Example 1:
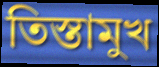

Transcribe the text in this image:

তিস্তামুখ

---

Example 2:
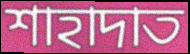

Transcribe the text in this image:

শাহাদাত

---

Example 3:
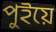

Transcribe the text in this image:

পুইয়ে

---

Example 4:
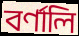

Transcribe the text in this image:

বর্ণালি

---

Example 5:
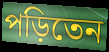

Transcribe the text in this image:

পড়িতেন